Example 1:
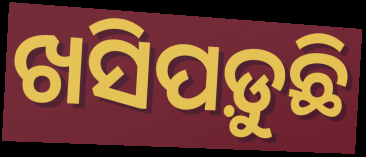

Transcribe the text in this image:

ଖସିପଡ଼ୁଛି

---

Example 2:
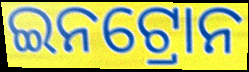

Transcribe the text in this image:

ଇନଟ୍ରୋନ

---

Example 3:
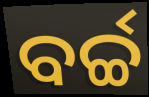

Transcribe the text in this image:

ବର୍ଚ୍ଚ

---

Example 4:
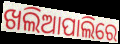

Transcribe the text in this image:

ଖଲିଆପାଲିରେ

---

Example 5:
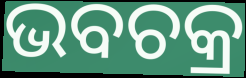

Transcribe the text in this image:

ଭବଚକ୍ର